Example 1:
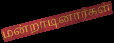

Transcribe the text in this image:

மன்றாடினார்கள்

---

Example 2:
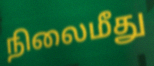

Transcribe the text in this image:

நிலைமீது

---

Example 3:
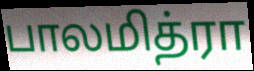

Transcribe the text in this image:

பாலமித்ரா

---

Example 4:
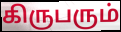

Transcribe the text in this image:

கிருபரும்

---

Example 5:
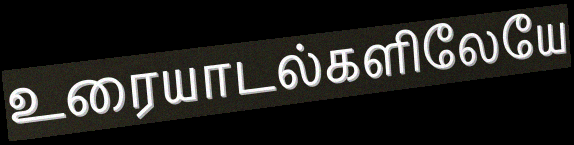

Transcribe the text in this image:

உரையாடல்களிலேயே